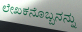
ಲೇಖಕನೊಬ್ಬನನ್ನು